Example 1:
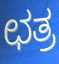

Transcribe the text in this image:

ಛತ್ರ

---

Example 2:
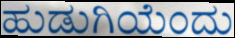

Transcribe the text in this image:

ಹುಡುಗಿಯೆಂದು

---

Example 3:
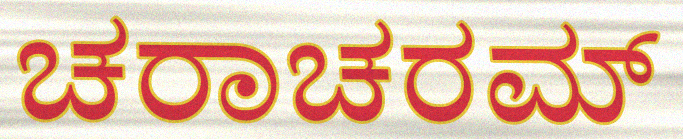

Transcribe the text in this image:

ಚರಾಚರಮ್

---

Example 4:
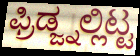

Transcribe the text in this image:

ಫ್ರಿಡ್ಜ್ನಲ್ಲಿಟ್ಟ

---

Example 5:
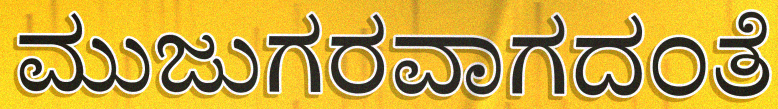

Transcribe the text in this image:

ಮುಜುಗರವಾಗದಂತೆ